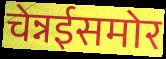
चेन्नईसमोर